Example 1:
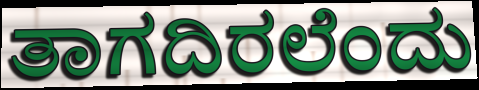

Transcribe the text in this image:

ತಾಗದಿರಲೆಂದು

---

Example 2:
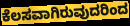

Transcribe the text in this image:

ಕೆಲಸವಾಗಿರುವುದರಿಂದ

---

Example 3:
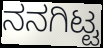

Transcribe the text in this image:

ನನಗಿಟ್ಟ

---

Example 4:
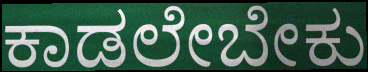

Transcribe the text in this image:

ಕಾಡಲೇಬೇಕು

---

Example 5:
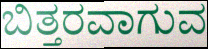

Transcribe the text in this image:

ಬಿತ್ತರವಾಗುವ